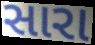
સારા